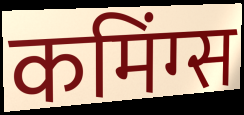
कमिंग्स